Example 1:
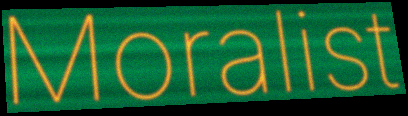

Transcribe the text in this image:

Moralist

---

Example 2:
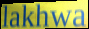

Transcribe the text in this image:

lakhwa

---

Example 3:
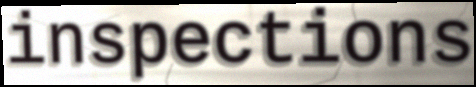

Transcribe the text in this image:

inspections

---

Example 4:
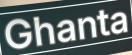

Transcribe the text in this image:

Ghanta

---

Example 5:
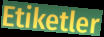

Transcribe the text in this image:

Etiketler